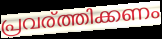
പ്രവര്ത്തിക്കണം